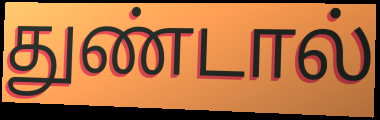
துண்டால்